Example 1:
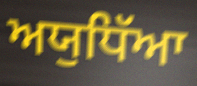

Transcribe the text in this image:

ਅਯੁਧਿੱਆ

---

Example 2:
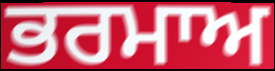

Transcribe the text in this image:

ਭਰਮਾਅ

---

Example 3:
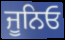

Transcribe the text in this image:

ਜੂਨਿਓ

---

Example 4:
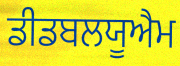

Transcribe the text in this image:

ਡੀਡਬਲਯੂਐਮ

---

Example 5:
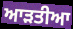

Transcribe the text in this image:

ਆੜਤੀਆ